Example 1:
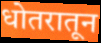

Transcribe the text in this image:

धोतरातून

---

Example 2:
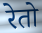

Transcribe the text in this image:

रेतो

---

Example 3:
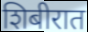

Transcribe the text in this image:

शिबीरात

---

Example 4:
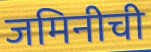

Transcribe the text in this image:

जमिनीची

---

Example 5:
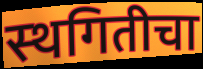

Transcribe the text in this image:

स्थगितीचा